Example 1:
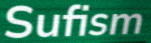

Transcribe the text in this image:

Sufism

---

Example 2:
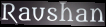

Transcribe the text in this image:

Raushan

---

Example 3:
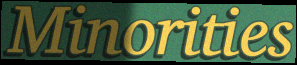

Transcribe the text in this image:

Minorities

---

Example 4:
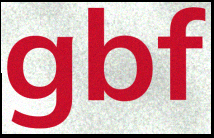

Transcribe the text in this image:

gbf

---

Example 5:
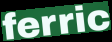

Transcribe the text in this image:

ferric